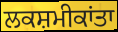
ਲਕਸ਼ਮੀਕਾਂਤਾ